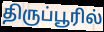
திருப்பூரில்